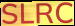
SLRC